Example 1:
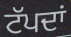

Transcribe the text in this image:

ਟੱਪਦਾਂ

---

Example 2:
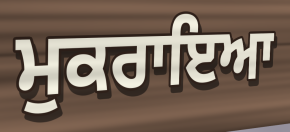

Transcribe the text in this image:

ਮੁਕਰਾਇਆ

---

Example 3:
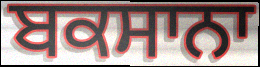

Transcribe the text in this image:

ਬਕਸਾਨਾ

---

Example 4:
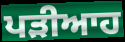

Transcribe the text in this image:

ਪੜੀਆਹ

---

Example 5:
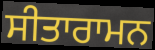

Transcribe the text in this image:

ਸੀਤਾਰਾਮਨ